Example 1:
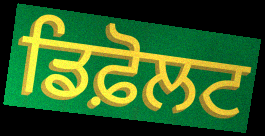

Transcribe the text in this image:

ਡਿਫ਼ੋਲਟ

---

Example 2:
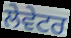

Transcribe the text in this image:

ਲੇਵੇਟਰ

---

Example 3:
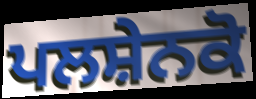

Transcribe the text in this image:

ਪਲਸ਼ੇਨਕੋ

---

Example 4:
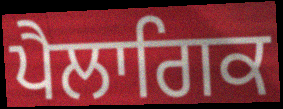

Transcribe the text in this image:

ਪੈਲਾਗਿਕ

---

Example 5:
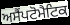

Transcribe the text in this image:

ਅਸੈਂਪਟੋਮੈਟਿਕ